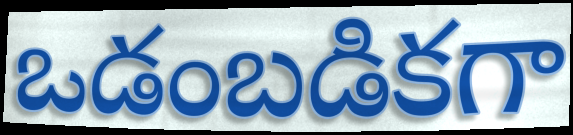
ఒడంబడికగా